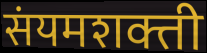
संयमशक्ती